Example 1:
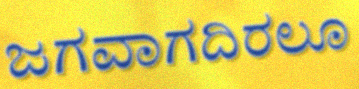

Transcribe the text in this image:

ಜಗವಾಗದಿರಲೂ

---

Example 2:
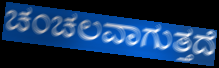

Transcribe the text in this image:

ಚಂಚಲವಾಗುತ್ತದೆ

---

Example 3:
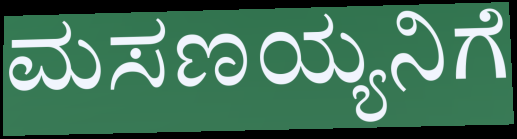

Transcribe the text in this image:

ಮಸಣಯ್ಯನಿಗೆ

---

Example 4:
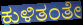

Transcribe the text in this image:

ಕುಳಿತಂತೇ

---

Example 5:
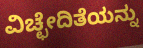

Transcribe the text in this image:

ವಿಚ್ಛೇದಿತೆಯನ್ನು